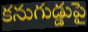
కనుగుడ్డుపై